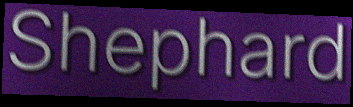
Shephard